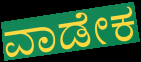
ವಾಡೇಕ